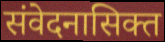
संवेदनासिक्त